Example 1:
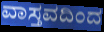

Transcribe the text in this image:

ವಾಸ್ತವದಿಂದ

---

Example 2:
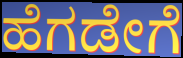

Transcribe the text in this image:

ಹೆಗಡೇಗೆ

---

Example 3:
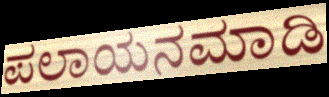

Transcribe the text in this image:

ಪಲಾಯನಮಾಡಿ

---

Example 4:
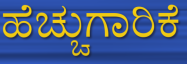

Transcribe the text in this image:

ಹೆಚ್ಚುಗಾರಿಕೆ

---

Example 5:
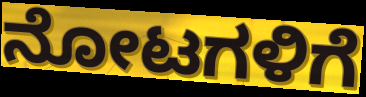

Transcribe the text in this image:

ನೋಟಗಳಿಗೆ